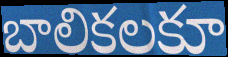
బాలికలకూ